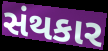
સંથકાર